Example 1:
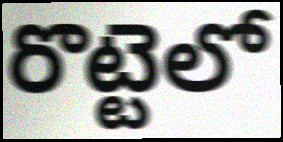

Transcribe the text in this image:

రొట్టెలో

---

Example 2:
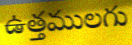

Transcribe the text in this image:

ఉత్తములగు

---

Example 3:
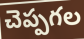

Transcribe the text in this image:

చెప్పగల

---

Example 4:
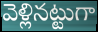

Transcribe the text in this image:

వెళ్లినట్టుగా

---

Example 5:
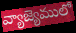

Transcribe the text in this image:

వ్యాజ్యెములో